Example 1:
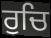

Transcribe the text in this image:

ਰੁਚਿ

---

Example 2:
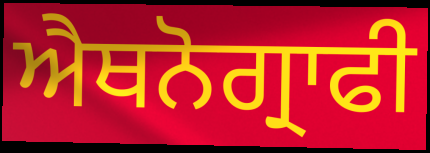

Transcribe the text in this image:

ਐਥਨੋਗ੍ਰਾਫੀ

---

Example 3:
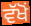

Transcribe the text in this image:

ਵੱਖੋਂ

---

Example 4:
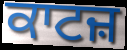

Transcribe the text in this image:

ਕਾਟਜ਼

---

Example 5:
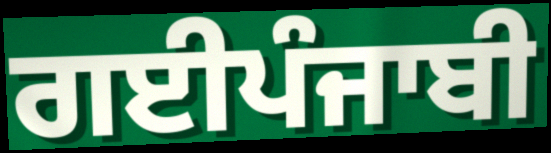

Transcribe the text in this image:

ਗਈਪੰਜਾਬੀ